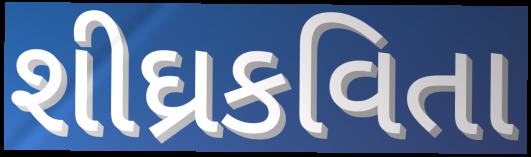
શીઘ્રકવિતા